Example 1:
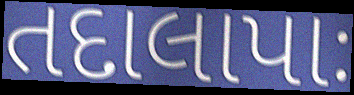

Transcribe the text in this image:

તદાલાપાઃ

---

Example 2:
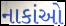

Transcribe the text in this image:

નાકાંઓ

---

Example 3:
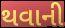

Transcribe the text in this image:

થવાની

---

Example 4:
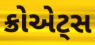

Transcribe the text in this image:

ક્રોએટ્સ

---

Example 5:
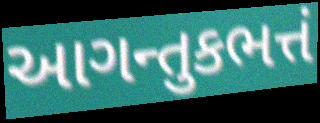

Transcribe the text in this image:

આગન્તુકભત્તં